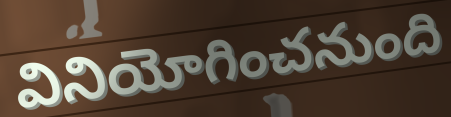
వినియోగించనుంది